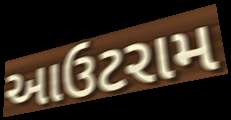
આઉટરામ